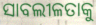
ସାବଲୀଳତାକୁ